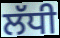
ਲੱਧੀ